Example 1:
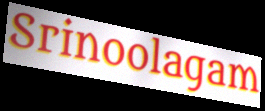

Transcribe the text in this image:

Srinoolagam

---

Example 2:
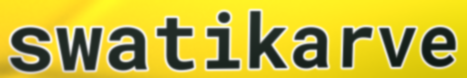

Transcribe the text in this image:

swatikarve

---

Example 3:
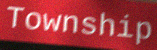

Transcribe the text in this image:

Township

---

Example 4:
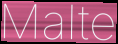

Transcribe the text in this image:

Malte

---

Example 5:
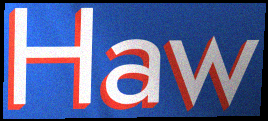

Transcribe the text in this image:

Haw